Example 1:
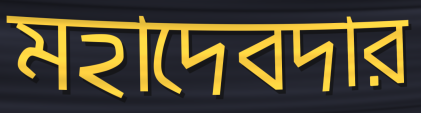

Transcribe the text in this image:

মহাদেবদার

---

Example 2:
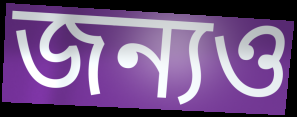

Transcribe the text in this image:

জন্যও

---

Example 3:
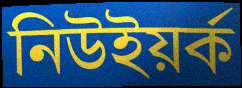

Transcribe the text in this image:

নিউইয়র্ক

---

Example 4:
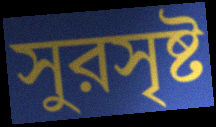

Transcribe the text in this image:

সুরসৃষ্ট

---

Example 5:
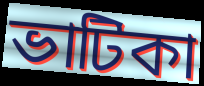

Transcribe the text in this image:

ভাটিকা